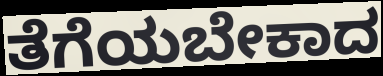
ತೆಗೆಯಬೇಕಾದ